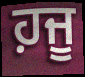
ਹ਼ਜੂ